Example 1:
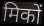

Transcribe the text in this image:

मिकों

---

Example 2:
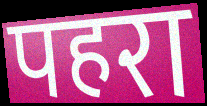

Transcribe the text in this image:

पहरा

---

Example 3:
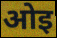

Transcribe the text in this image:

ओइ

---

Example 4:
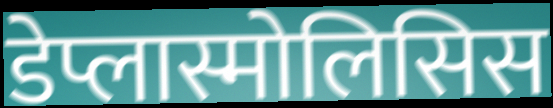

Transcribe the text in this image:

डेप्लास्मोलिसिस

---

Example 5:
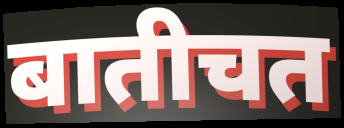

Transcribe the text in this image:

बातीचत